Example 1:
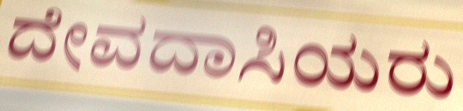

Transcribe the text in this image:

ದೇವದಾಸಿಯರು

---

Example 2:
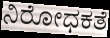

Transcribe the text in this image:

ನಿರೋಧಕತೆ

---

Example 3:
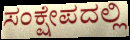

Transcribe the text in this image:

ಸಂಕ್ಷೇಪದಲ್ಲಿ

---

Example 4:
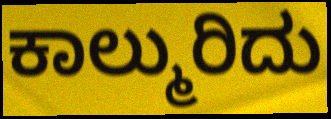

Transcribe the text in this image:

ಕಾಲ್ಮುರಿದು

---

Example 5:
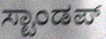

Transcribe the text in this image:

ಸ್ಟಾಂಡಪ್